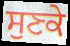
ਸੁਣਕੇ